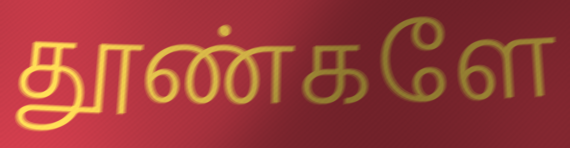
தூண்களே